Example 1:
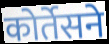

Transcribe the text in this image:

कोर्तेसने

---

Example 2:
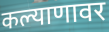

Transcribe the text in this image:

कल्याणावर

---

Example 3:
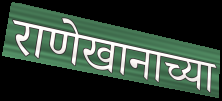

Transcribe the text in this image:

राणेखानाच्या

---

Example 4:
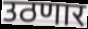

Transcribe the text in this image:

उठणार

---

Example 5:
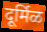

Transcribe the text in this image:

दूर्मिळ